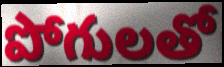
పోగులతో